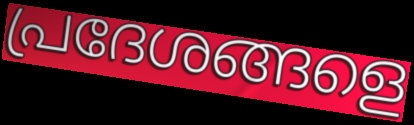
പ്രദേശങ്ങളെ